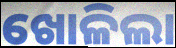
ଖୋଳିଲା